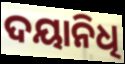
ଦୟାନିଧି